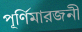
পূর্ণিমারজনী